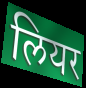
लियर